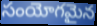
సంయోగమైన